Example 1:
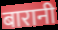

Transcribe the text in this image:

बारानी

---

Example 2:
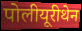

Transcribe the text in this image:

पोलीयूरीथेन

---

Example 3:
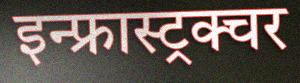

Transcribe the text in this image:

इन्फ्रास्ट्रक्चर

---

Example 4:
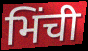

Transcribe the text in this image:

भिंची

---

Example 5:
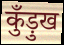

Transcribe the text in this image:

कुँड़ुख